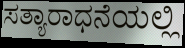
ಸತ್ಯಾರಾಧನೆಯಲ್ಲಿ